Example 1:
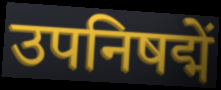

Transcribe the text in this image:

उपनिषद्में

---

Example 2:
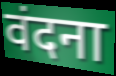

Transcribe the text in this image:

वंदना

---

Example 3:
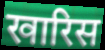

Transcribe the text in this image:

खारिस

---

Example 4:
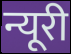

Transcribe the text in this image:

न्यूरी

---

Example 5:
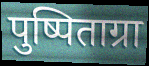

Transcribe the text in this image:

पुष्पिताग्रा